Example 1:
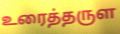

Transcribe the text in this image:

உரைத்தருள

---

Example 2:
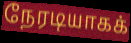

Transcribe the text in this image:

நேரடியாகக்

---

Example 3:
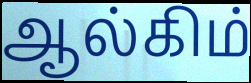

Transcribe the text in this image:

ஆல்கிம்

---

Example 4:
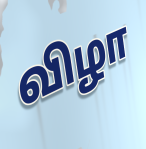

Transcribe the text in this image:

விழா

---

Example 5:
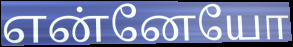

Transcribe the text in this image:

என்னேயோ